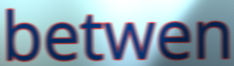
betwen